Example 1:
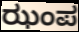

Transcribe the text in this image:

ಝಂಪ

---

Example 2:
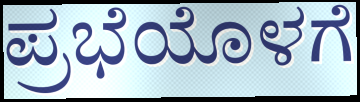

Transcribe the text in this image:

ಪ್ರಭೆಯೊಳಗೆ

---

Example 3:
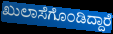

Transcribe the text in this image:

ಖುಲಾಸೆಗೊಂಡಿದ್ದಾರೆ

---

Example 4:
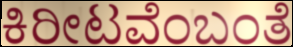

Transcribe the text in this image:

ಕಿರೀಟವೆಂಬಂತೆ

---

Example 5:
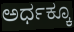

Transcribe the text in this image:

ಅರ್ಧಕ್ಕೂ